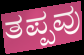
ತಪ್ಪವು